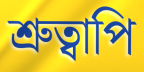
শ্রুত্বাপি